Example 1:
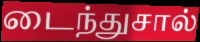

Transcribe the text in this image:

டைந்துசால்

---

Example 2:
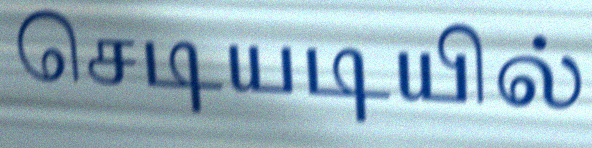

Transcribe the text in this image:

செடியடியில்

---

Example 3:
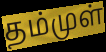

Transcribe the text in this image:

தம்முள்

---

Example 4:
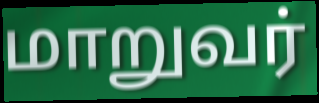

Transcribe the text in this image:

மாறுவர்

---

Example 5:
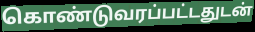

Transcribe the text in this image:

கொண்டுவரப்பட்டதுடன்